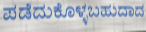
ಪಡೆದುಕೊಳ್ಳಬಹುದಾದ